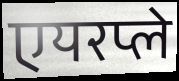
एयरप्ले